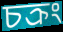
চক্রং